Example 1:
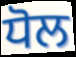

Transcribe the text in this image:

ਧੋਲ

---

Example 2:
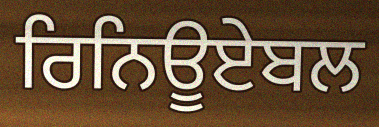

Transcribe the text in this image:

ਰਿਨਿਊਏਬਲ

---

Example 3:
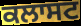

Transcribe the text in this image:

ਕਲਾਸਟ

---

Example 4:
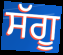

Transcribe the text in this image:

ਸੱਗੂ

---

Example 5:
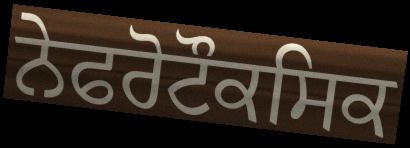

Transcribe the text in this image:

ਨੇਫਰੋਟੌਕਸਿਕ